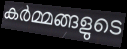
കർമ്മങ്ങളുടെ